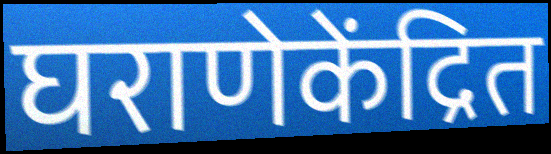
घराणेकेंद्रित